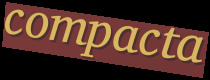
compacta